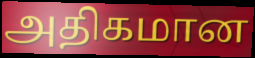
அதிகமான